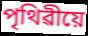
পৃথিৱীয়ে